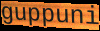
guppuni